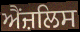
ਐਂਜ਼ਲਿਸ